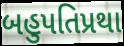
બહુપતિપ્રથા